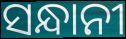
ସନ୍ଧାନୀ